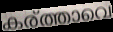
കര്ത്താവെ